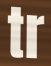
tr